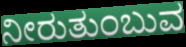
ನೀರುತುಂಬುವ